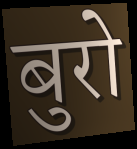
बुरो